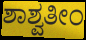
ಶಾಶ್ವತೀಂ